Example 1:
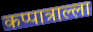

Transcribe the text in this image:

कप्पात्राल्ला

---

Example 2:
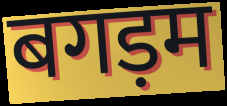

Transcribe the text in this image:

बगड़म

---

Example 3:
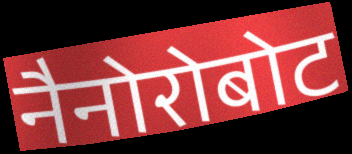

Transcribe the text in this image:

नैनोरोबोट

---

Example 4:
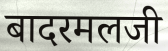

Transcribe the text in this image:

बादरमलजी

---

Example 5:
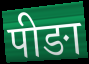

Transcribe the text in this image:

पीङा